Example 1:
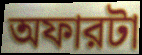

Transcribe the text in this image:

অফারটা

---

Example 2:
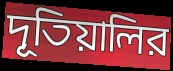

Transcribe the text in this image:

দূতিয়ালির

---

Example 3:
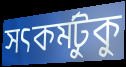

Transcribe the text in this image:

সৎকর্মটুকু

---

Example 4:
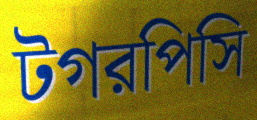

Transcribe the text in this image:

টগরপিসি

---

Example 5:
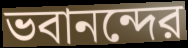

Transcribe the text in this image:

ভবানন্দের